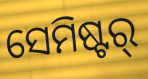
ସେମିଷ୍ଟର୍